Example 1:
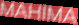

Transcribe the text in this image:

MAHIMA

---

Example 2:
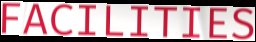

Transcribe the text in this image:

FACILITIES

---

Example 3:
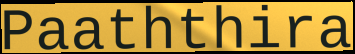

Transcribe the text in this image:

Paaththira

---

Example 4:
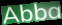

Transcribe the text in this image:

Abba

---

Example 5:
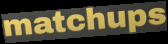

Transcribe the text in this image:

matchups